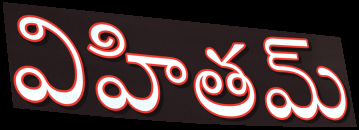
విహితమ్